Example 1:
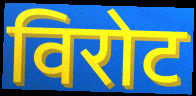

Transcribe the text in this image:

विरोट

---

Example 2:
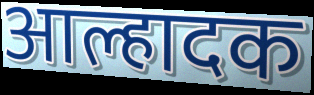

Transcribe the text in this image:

आल्हादक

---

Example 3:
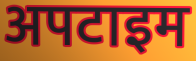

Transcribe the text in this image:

अपटाइम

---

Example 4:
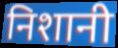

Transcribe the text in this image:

निशानी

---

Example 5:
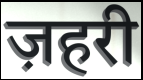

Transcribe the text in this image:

ज़हरी